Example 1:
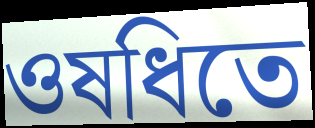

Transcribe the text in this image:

ওষধিতে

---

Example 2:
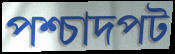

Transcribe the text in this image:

পশ্চাদপট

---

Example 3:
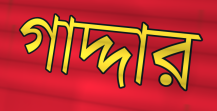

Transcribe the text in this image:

গাদ্দার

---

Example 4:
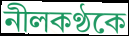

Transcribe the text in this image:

নীলকণ্ঠকে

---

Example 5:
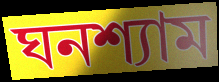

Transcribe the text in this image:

ঘনশ্যাম